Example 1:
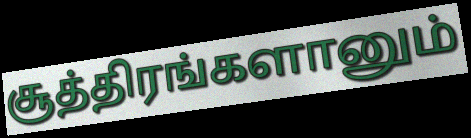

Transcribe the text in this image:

சூத்திரங்களானும்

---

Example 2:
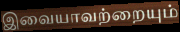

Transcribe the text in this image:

இவையாவற்றையும்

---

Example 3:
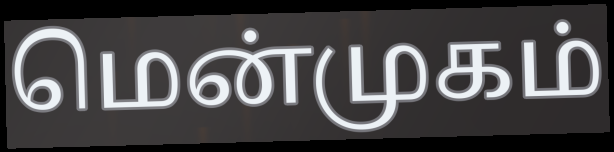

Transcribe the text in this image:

மென்முகம்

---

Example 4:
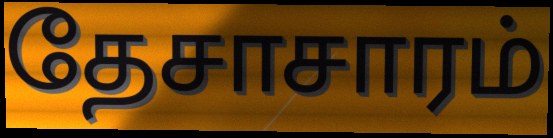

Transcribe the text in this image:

தேசாசாரம்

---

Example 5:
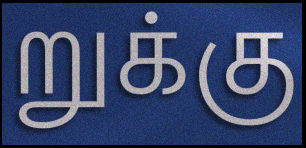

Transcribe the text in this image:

றுக்கு